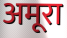
अमूरा